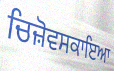
ਚਿਜ਼ੋਵਸਕਾਇਆ